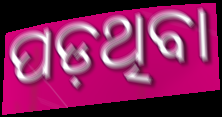
ପଡ଼ଥିବା